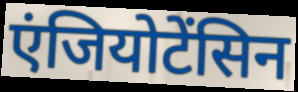
एंजियोटेंसिन